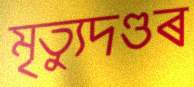
মৃত্যুদণ্ডৰ